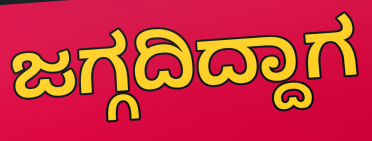
ಜಗ್ಗದಿದ್ದಾಗ